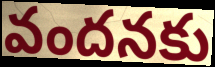
వందనకు